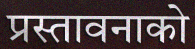
प्रस्तावनाको